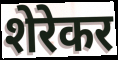
शेरेकर